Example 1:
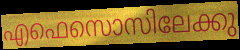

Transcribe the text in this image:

എഫെസൊസിലേക്കു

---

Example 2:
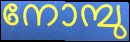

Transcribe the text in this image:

നോമ്പു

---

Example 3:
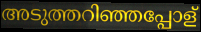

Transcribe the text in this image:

അടുത്തറിഞ്ഞപ്പോള്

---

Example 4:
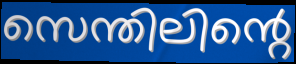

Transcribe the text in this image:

സെന്തിലിന്റെ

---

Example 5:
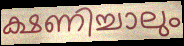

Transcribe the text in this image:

ക്ഷണിച്ചാലും